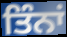
ਤਿੰਨਾਂ